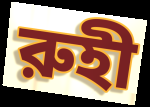
রুহী